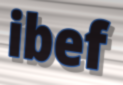
ibef